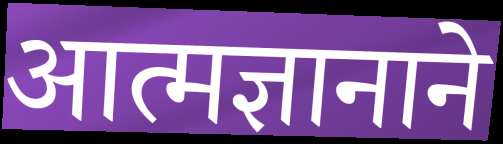
आत्मज्ञानाने